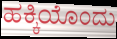
ಹಕ್ಕಿಯೊಂದು